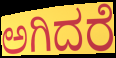
ಅಗಿದರೆ